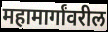
महामार्गांवरील